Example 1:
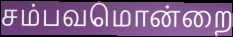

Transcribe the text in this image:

சம்பவமொன்றை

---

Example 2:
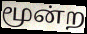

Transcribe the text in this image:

மூன்ற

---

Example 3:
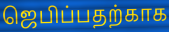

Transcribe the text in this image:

ஜெபிப்பதற்காக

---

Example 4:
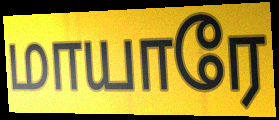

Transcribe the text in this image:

மாயாரே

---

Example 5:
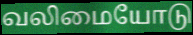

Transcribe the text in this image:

வலிமையோடு